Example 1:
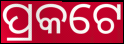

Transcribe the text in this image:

ପ୍ରକଟେ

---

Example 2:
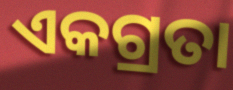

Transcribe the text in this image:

ଏକଗ୍ରତା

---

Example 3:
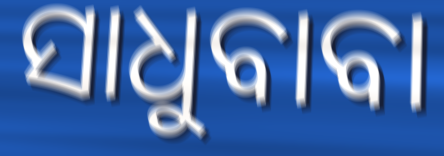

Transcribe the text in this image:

ସାଧୁବାବା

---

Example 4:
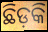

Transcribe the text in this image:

ଛିଡ଼କି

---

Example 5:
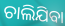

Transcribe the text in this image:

ଚାଲିଯିବା